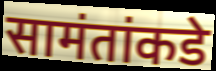
सामंतांकडे